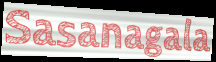
Sasanagala